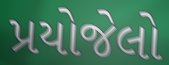
પ્રયોજેલો